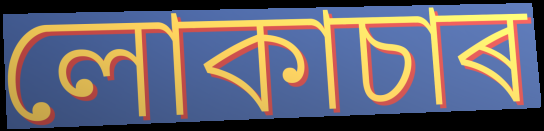
লোকাচাৰ